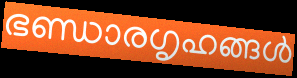
ഭണ്ഡാരഗൃഹങ്ങൾ